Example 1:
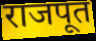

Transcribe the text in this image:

राजपूत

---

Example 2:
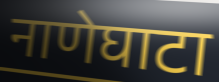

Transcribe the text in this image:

नाणेघाटा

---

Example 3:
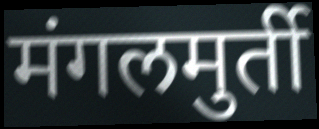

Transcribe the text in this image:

मंगलमुर्ती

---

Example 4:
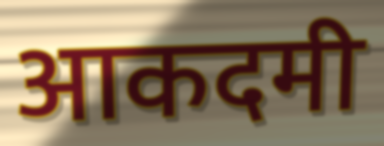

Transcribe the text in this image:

आकदमी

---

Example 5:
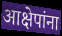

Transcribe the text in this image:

आक्षेपांना